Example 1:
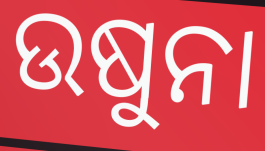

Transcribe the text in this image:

ଉଷୁନା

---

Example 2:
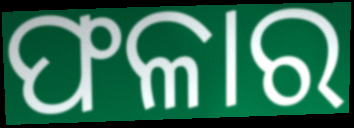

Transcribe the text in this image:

ଫଳାର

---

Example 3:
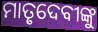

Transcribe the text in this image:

ମାତୃଦେବୀଙ୍କୁ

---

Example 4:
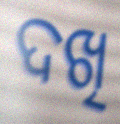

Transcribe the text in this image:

ଦଖି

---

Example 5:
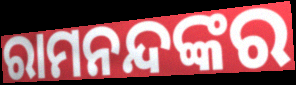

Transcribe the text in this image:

ରାମନନ୍ଦଙ୍କର